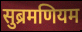
सुब्रमणियम